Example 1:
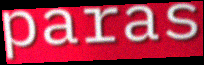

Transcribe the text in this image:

paras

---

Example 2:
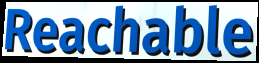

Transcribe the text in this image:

Reachable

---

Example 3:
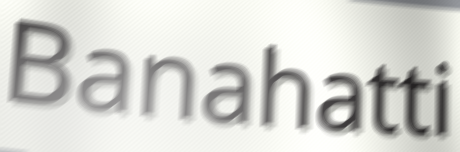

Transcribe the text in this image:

Banahatti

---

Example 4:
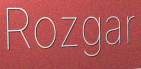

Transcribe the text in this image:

Rozgar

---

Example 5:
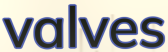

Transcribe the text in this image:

valves